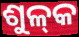
ଶୁଳ୍‌କ